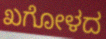
ಖಗೋಳದ